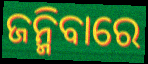
ଜନ୍ମିବାରେ